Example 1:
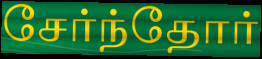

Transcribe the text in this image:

சேர்ந்தோர்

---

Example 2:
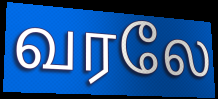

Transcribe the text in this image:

வரலே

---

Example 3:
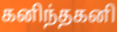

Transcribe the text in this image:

கனிந்தகனி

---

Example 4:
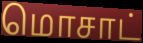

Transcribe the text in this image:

மொசாட்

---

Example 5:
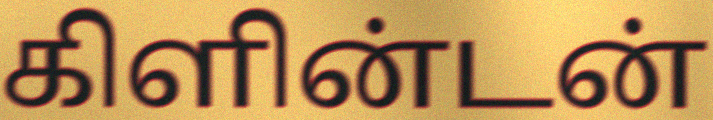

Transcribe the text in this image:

கிளின்டன்